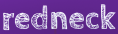
redneck